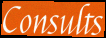
Consults